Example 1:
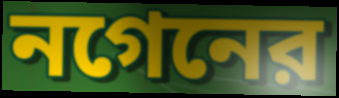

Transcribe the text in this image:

নগেনের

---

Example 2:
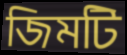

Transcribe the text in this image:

জিমটি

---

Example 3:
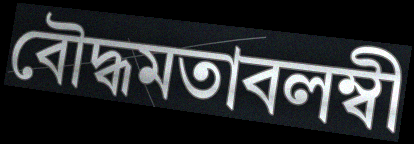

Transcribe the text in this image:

বৌদ্ধমতাবলম্বী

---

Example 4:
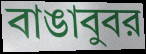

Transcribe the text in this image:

বাঙাবুবর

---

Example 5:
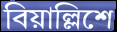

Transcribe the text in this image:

বিয়াল্লিশে